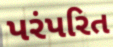
પરંપરિત